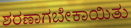
ಶರಣಾಗಬೇಕಾಯಿತು